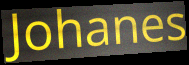
Johanes